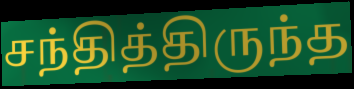
சந்தித்திருந்த